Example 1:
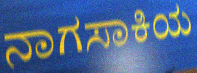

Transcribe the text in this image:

ನಾಗಸಾಕಿಯ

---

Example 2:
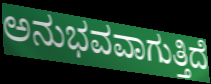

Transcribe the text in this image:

ಅನುಭವವಾಗುತ್ತಿದೆ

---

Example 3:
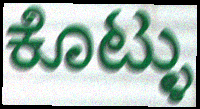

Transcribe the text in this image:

ಕೊಟ್ಳು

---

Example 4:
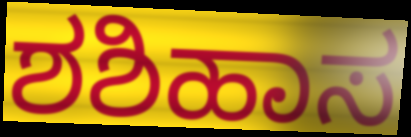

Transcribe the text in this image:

ಶಶಿಹಾಸ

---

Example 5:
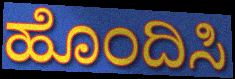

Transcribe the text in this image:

ಹೊಂದಿಸಿ